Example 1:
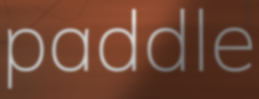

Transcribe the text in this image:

paddle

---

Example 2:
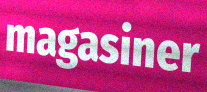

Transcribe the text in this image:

magasiner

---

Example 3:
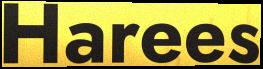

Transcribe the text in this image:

Harees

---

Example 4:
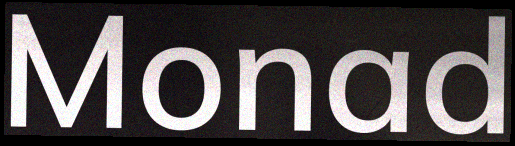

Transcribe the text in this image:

Monad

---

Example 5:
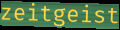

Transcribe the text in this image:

zeitgeist